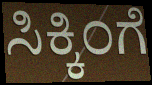
ಸಿಕ್ಕಿಂಗೆ